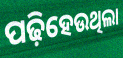
ପଢ଼ିହେଉଥିଲା